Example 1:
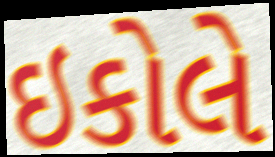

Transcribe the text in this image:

ઇકોલે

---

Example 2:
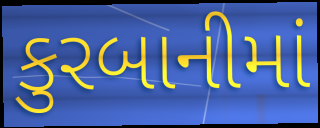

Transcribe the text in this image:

કુરબાનીમાં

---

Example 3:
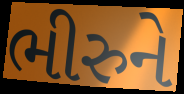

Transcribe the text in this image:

ભીરુને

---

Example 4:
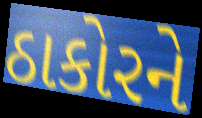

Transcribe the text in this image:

ઠાકોરને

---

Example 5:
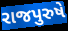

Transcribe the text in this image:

રાજપુરુષે